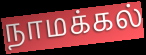
நாமக்கல்